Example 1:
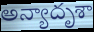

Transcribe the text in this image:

అన్యాదృశా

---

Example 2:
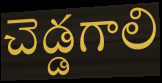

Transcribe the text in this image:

చెడ్డగాలి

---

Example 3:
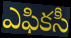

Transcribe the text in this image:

ఎఫికసీ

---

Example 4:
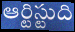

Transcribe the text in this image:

ఆర్టిస్టుది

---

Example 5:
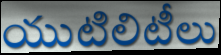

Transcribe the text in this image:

యుటిలిటీలు